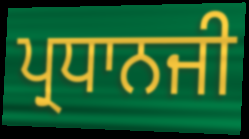
ਪ੍ਰਧਾਨਜੀ